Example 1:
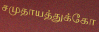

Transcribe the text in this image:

சமுதாயத்துக்கோ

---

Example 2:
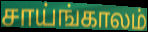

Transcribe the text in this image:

சாய்ங்காலம்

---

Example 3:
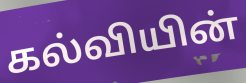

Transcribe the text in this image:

கல்வியின்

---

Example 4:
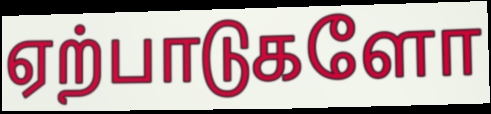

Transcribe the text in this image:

ஏற்பாடுகளோ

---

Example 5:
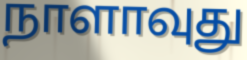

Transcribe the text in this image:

நாளாவுது